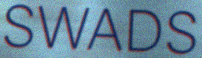
SWADS